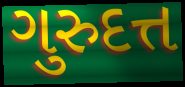
ગુરુદત્ત